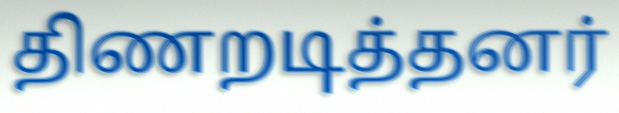
திணறடித்தனர்